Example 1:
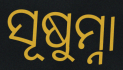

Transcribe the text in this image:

ସୂଷୁମ୍ନା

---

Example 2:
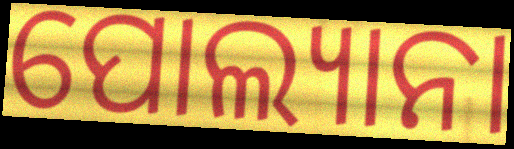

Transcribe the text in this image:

ପୋଲ୍ୟାନା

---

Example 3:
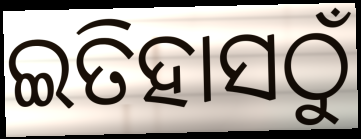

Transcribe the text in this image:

ଇତିହାସଠୁଁ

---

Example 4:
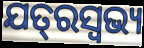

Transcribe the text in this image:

ଯତ୍‌ରସ୍ଵଭ୍ୟ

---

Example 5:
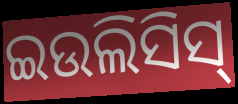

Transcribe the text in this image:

ଇଉଲିସିସ୍